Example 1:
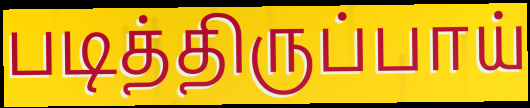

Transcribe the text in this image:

படித்திருப்பாய்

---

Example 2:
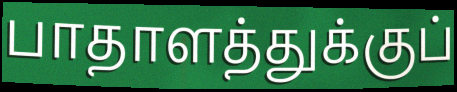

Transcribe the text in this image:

பாதாளத்துக்குப்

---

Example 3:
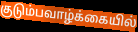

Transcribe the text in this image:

குடும்பவாழ்க்கையில்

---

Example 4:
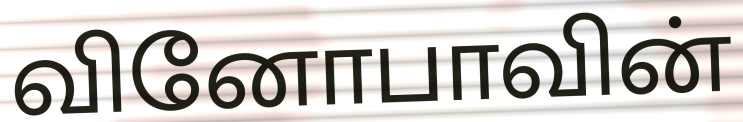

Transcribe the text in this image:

வினோபாவின்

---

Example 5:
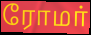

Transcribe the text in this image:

ரோமர்